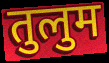
तुलुम